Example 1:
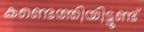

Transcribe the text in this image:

കണ്ടെത്തിയിട്ടുണ്ട്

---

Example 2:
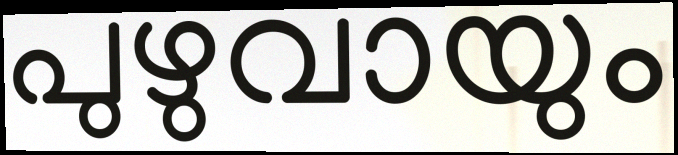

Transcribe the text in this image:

പുഴുവായും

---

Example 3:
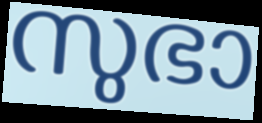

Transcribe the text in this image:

സുഭാ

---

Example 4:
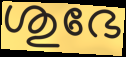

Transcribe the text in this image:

ശുഭേ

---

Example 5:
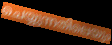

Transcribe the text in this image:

ചെയ്യുന്നതിലെയും